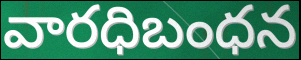
వారధిబంధన